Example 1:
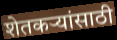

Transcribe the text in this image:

शेतकर्‍यांसाठी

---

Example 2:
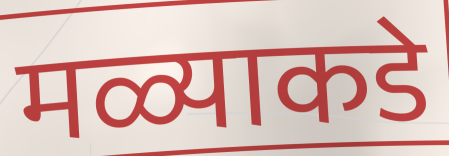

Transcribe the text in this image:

मळ्याकडे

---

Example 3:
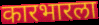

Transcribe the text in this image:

कारभारला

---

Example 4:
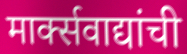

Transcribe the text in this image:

मार्क्सवाद्यांची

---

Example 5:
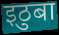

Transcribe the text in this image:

इठुबा